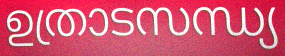
ഉത്രാടസന്ധ്യ